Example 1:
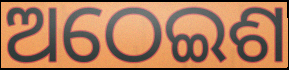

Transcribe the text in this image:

ଅଠେଇଶ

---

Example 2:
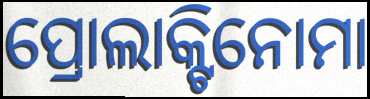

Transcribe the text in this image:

ପ୍ରୋଲାକ୍ଟିନୋମା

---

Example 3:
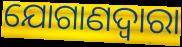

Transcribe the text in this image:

ଯୋଗାଣଦ୍ଵାରା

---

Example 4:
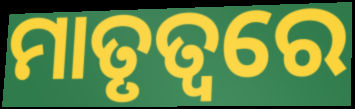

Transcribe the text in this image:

ମାତୃତ୍ୱରେ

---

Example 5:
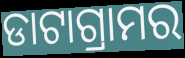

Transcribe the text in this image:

ଡାଟାଗ୍ରାମର